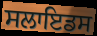
ਸਲਾਇਡਸ